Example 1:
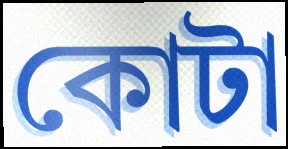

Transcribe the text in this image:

কোটা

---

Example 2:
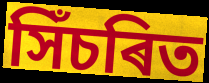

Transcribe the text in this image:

সিঁচৰিত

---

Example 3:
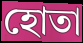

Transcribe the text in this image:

হোতা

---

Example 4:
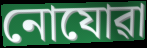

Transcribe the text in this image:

নোযোৱা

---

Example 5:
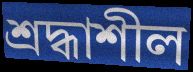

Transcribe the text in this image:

শ্ৰদ্ধাশীল